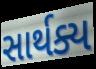
સાર્થક્ય